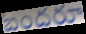
బందరూ